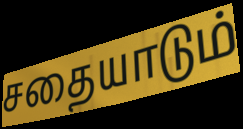
சதையாடும்